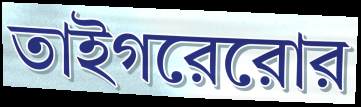
তাইগরেরোর